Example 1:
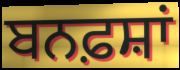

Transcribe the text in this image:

ਬਨਫ਼ਸ਼ਾਂ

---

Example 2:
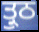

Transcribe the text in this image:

ਤ੍ਰੁਠ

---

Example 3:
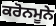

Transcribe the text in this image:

ਕਰੋਨਮੂਨੇ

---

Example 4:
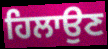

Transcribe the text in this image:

ਹਿਲਾਉਣ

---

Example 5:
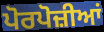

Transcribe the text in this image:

ਪੋਰਪੋਜ਼ੀਆਂ